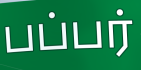
பப்பர்